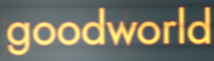
goodworld